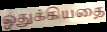
ஒதுக்கியதை